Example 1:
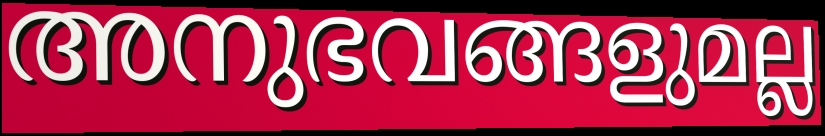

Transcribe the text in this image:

അനുഭവങ്ങളുമല്ല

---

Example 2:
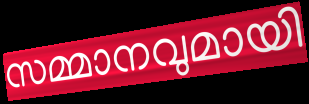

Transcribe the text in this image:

സമ്മാനവുമായി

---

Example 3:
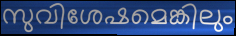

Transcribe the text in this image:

സുവിശേഷമെങ്കിലും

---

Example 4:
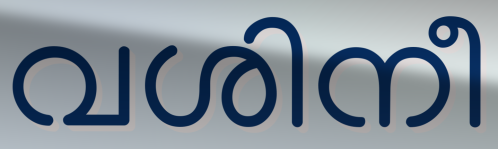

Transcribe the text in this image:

വശിനീ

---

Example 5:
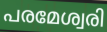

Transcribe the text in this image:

പരമേശ്വരി